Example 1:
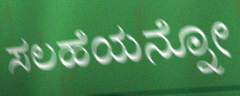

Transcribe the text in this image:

ಸಲಹೆಯನ್ನೋ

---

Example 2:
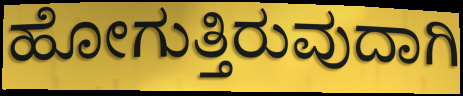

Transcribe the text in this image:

ಹೋಗುತ್ತಿರುವುದಾಗಿ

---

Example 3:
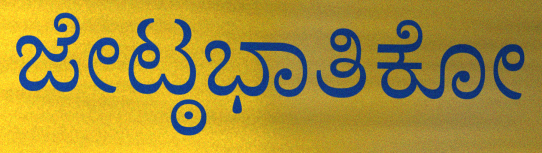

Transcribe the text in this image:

ಜೇಟ್ಠಭಾತಿಕೋ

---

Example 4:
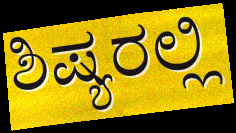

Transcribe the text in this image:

ಶಿಷ್ಯರಲ್ಲಿ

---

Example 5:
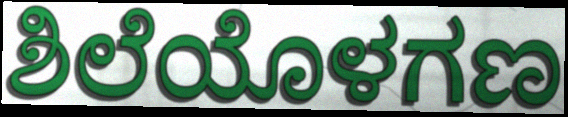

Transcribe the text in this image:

ಶಿಲೆಯೊಳಗಣ